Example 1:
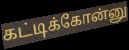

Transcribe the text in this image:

கட்டிக்கோன்னு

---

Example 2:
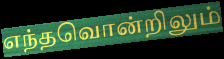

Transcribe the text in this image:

எந்தவொன்றிலும்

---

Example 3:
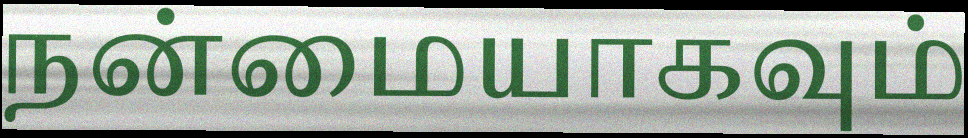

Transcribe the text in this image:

நன்மையாகவும்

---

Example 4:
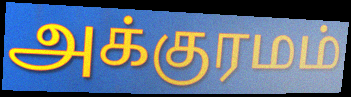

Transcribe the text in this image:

அக்குரமம்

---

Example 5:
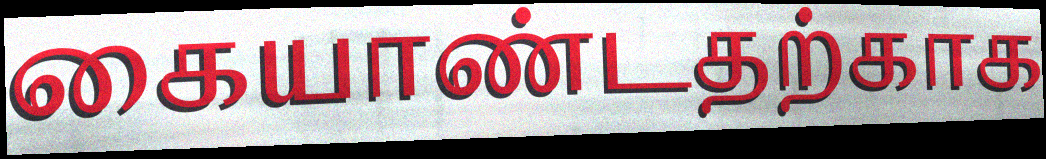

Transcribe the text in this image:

கையாண்டதற்காக